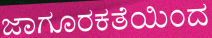
ಜಾಗೂರಕತೆಯಿಂದ